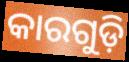
କାରଗୁଡ଼ି